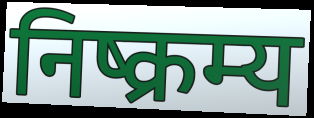
निष्क्रम्य